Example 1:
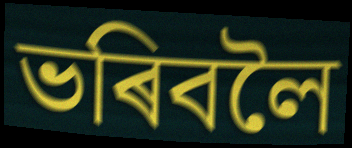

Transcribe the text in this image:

ভৰিবলৈ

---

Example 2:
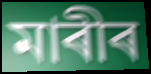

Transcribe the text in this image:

মাৰীৰ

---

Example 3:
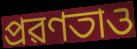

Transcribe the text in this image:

প্ৰৱণতাও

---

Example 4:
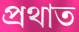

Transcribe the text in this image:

প্ৰথাত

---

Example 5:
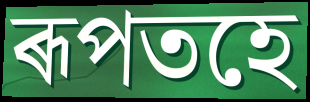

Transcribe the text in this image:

ৰূপতহে